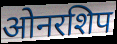
ओनरशिप